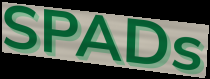
SPADs